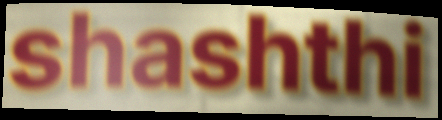
shashthi